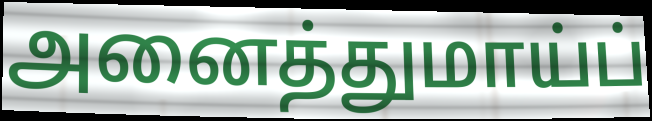
அனைத்துமாய்ப்